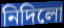
নিদিলো